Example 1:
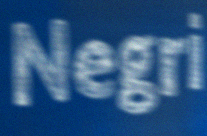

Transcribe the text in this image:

Negri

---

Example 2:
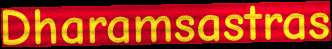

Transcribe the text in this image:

Dharamsastras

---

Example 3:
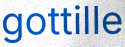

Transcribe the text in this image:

gottille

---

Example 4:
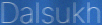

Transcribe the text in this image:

Dalsukh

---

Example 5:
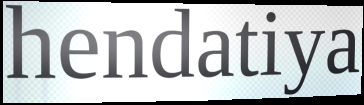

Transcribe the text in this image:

hendatiya